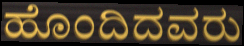
ಹೊಂದಿದವರು